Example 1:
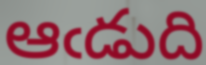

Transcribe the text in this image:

ఆఁడుది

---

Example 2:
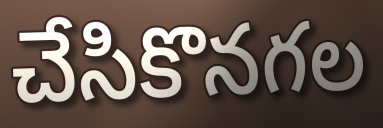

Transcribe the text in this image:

చేసికొనగల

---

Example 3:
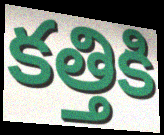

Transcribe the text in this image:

కత్తికి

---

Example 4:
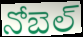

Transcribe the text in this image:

నోబెల్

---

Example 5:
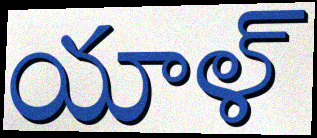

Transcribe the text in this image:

యాళ్